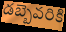
డబ్బెవరికి